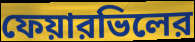
ফেয়ারভিলের